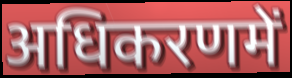
अधिकरणमें